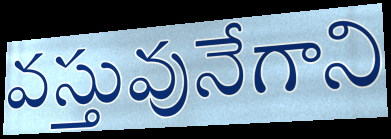
వస్తువునేగాని